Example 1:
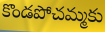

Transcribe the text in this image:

కొండపోచమ్మకు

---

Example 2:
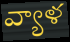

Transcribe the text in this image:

వ్యాళ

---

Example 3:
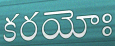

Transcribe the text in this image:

కరయోః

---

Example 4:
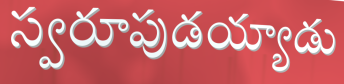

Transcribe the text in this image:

స్వరూపుడయ్యాడు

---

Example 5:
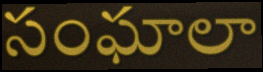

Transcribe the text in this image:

సంఘాలా